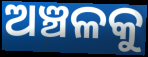
ଅଞ୍ଚଳକୁ